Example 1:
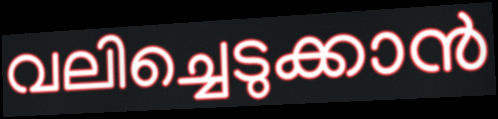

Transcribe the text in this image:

വലിച്ചെടുക്കാൻ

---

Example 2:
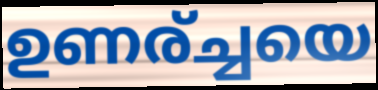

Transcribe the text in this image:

ഉണര്ച്ചയെ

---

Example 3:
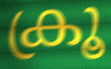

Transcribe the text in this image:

ക്രൂ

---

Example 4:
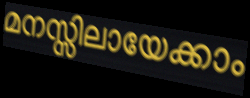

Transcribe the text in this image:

മനസ്സിലായേക്കാം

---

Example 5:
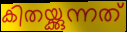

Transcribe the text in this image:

കിതയ്ക്കുന്നത്